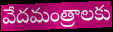
వేదమంత్రాలకు